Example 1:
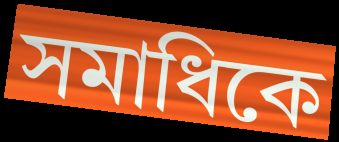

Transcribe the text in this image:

সমাধিকে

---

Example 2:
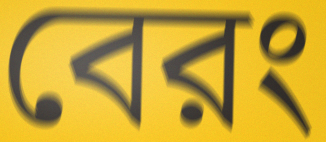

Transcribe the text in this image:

বেরং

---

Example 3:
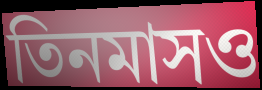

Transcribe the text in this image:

তিনমাসও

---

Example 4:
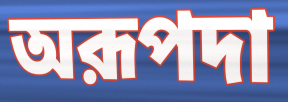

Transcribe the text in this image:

অরূপদা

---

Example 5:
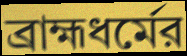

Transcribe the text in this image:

ব্রাহ্মধর্মের